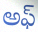
అఫ్